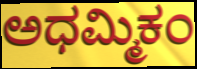
ಅಧಮ್ಮಿಕಂ